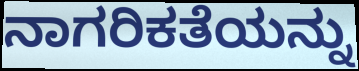
ನಾಗರಿಕತೆಯನ್ನು